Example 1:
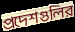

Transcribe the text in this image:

প্রদেশগুলির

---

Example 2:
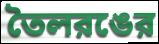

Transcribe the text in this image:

তৈলরঙের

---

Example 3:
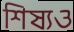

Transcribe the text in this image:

শিষ্যও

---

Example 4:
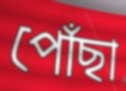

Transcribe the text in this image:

পোঁছা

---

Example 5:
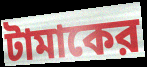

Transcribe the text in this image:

টামাকের